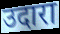
उदारा